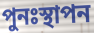
পুনঃস্থাপন